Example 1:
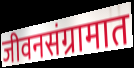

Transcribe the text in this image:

जीवनसंग्रामात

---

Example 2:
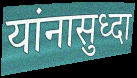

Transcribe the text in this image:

यांनासुध्दा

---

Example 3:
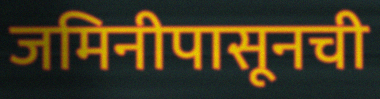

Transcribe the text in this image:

जमिनीपासूनची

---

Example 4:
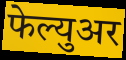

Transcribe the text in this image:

फेल्युअर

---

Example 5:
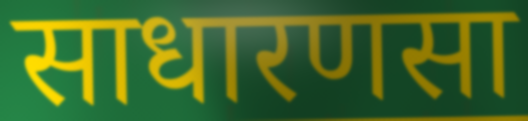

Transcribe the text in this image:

साधारणसा